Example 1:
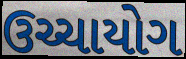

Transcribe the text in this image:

ઉચ્ચાયોગ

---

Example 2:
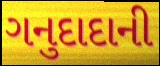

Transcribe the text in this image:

ગનુદાદાની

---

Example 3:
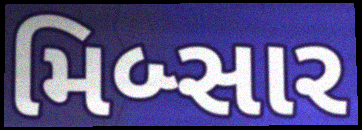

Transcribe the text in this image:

મિબ્સાર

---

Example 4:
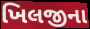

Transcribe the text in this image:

ખિલજીના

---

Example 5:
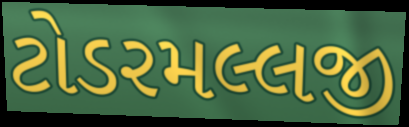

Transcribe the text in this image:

ટોડરમલ્લજી